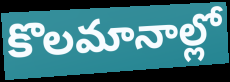
కొలమానాల్లో